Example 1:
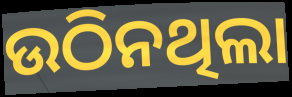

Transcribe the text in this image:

ଉଠିନଥିଲା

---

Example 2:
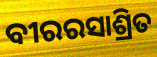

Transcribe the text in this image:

ବୀରରସାଶ୍ରିତ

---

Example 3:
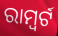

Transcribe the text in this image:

ରାମ୍ବର୍ଟ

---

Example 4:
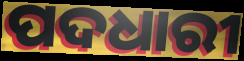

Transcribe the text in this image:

ପଦଧାରୀ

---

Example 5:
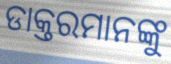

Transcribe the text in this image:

ଡାକ୍ତରମାନଙ୍କୁ